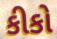
કીકો